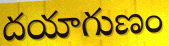
దయాగుణం